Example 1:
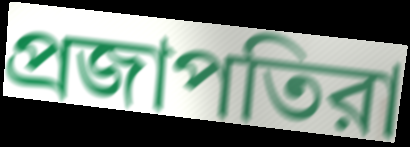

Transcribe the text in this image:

প্রজাপতিরা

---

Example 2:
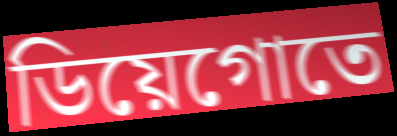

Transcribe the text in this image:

ডিয়েগোতে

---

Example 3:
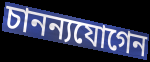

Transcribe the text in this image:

চানন্যযোগেন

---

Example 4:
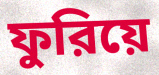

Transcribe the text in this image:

ফুরিয়ে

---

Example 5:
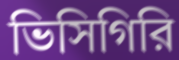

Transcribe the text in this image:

ভিসিগিরি